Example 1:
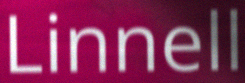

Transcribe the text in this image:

Linnell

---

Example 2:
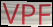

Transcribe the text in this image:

VPF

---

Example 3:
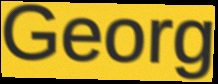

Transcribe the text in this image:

Georg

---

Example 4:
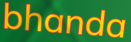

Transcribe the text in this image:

bhanda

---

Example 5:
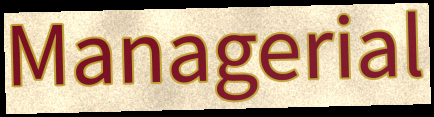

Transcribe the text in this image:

Managerial